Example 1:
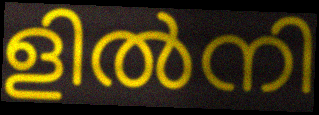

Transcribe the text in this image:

ളിൽനി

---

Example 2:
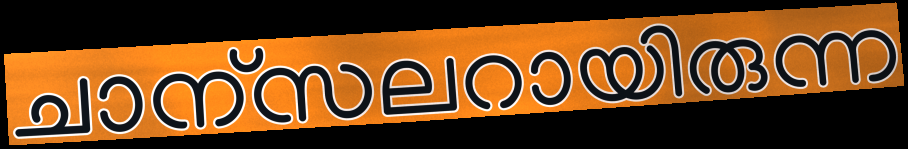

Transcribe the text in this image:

ചാന്സലറായിരുന്ന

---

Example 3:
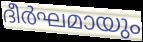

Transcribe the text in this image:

ദീർഘമായും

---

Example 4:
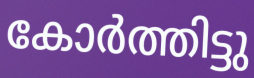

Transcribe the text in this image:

കോർത്തിട്ടു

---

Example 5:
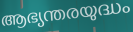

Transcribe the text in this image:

ആഭ്യന്തരയുദ്ധം